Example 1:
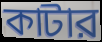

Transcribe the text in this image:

কাটার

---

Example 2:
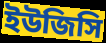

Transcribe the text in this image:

ইউজিসি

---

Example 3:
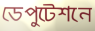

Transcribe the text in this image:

ডেপুটেশনে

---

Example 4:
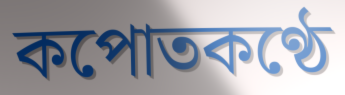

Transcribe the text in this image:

কপোতকণ্ঠে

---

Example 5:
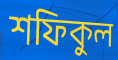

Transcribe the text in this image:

শফিকুল